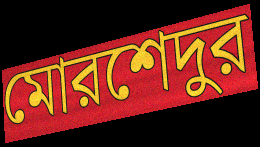
মোরশেদুর